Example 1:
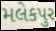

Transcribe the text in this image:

મલેકપુર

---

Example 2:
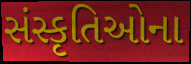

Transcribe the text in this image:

સંસ્કૃતિઓના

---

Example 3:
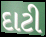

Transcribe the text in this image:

દાટી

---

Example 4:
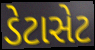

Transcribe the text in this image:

ડેટાસેટ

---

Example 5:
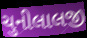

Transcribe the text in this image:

ચુનીલાલજી